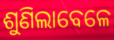
ଶୁଣିଲାବେଳେ